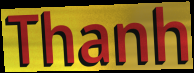
Thanh